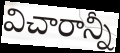
విచారాన్నీ